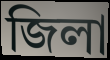
জিলা